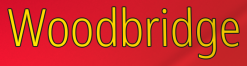
Woodbridge